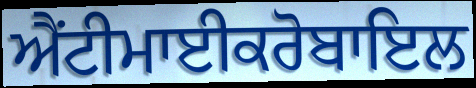
ਐਂਟੀਮਾਈਕਰੋਬਾਇਲ